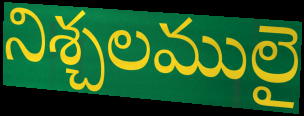
నిశ్చలములై